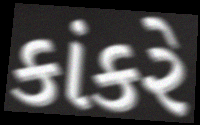
કાંકરે